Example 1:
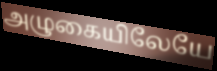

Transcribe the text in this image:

அழுகையிலேயே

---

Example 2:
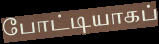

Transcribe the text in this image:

போட்டியாகப்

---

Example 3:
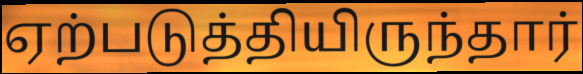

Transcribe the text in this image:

ஏற்படுத்தியிருந்தார்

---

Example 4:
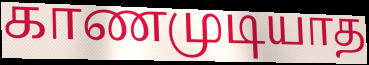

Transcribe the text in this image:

காணமுடியாத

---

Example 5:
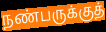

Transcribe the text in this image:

நண்பருக்குத்